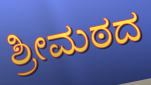
ಶ್ರೀಮಠದ